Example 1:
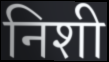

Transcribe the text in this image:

निशी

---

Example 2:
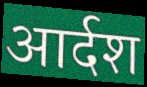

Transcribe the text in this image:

आर्दश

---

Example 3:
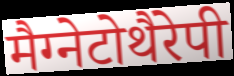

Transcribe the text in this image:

मैग्नेटोथैरेपी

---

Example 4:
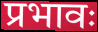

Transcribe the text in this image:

प्रभावः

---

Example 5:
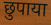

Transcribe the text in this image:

छुपाया